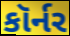
કૉર્નર